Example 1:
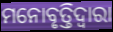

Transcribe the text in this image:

ମନୋବୃତ୍ତିଦ୍ଵାରା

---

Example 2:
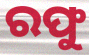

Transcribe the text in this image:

ରଫୁ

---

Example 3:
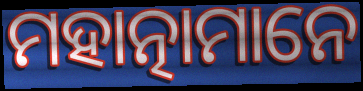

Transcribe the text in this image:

ମହାତ୍ନାମାନେ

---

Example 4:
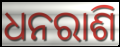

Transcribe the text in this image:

ଧନରାଶି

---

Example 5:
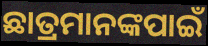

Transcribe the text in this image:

ଛାତ୍ରମାନଙ୍କପାଇଁ